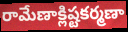
రామేణాక్లిష్టకర్మణా